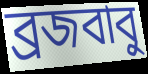
ব্রজবাবু